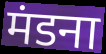
मंडना